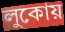
লুকোয়